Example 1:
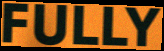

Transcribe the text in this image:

FULLY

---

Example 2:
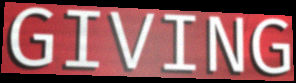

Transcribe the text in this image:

GIVING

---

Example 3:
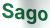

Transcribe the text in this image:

Sago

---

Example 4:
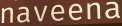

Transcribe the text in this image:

naveena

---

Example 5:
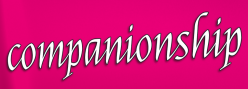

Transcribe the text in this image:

companionship